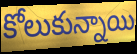
కోలుకున్నాయి